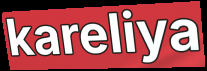
kareliya